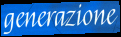
generazione